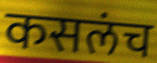
कसलंच